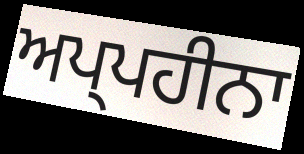
ਅਪ੍ਪਹੀਨਾ